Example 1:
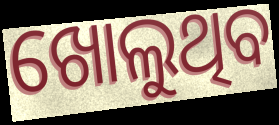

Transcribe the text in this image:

ଖୋଲୁଥିବ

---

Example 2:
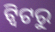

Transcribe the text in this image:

ଟ୍ବିଟରୁ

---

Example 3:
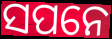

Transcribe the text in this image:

ସପନେ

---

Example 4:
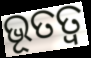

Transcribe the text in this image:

ଭୂତତ୍ୱ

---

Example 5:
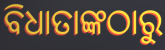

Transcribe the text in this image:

ବିଧାତାଙ୍କଠାରୁ